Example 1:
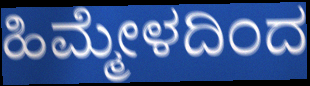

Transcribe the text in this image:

ಹಿಮ್ಮೇಳದಿಂದ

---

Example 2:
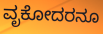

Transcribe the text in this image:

ವೃಕೋದರನೂ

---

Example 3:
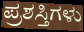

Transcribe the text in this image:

ಪ್ರಶಸ್ತಿಗಳು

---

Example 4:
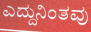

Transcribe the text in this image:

ಎದ್ದುನಿಂತವು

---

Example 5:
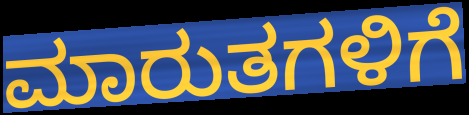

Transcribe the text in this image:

ಮಾರುತಗಳಿಗೆ